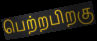
பெற்றபிறகு